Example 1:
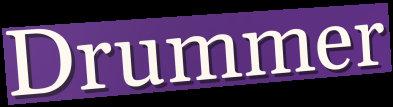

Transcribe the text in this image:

Drummer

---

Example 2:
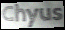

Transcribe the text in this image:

Chyus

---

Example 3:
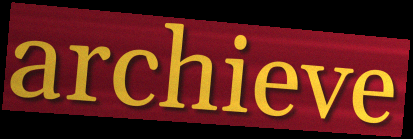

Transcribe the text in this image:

archieve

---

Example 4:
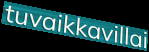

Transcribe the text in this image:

tuvaikkavillai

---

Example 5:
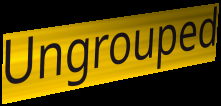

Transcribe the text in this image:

Ungrouped